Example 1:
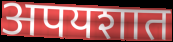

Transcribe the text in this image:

अपयशात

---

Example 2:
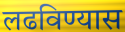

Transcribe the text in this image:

लढविण्यास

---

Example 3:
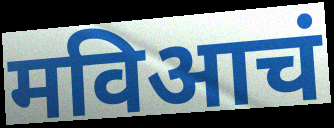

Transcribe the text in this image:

मविआचं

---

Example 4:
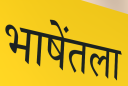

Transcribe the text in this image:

भाषेंतला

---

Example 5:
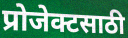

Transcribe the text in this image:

प्रोजेक्टसाठी